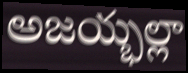
అజయ్భల్లా